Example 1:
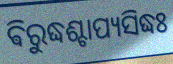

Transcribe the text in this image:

ଵିରୁଦ୍ଧଶ୍ଚାପ୍ଯସିଦ୍ଧଃ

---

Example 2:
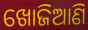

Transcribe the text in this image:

ଖୋଜିଆଣି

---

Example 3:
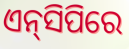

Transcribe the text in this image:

ଏନ୍‌ସିପିରେ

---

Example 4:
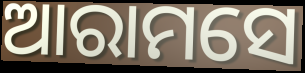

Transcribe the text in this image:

ଆରାମସେ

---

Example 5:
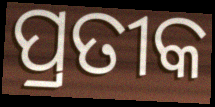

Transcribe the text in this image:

ପ୍ରତୀକ